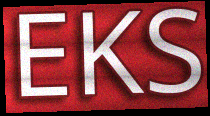
EKS